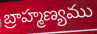
బ్రాహ్మణ్యము